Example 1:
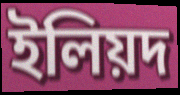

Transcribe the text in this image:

ইলিয়দ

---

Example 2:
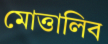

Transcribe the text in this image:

মোত্তালিব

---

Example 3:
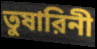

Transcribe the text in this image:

তুষারিনী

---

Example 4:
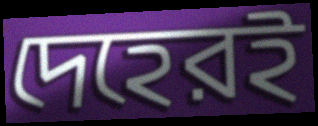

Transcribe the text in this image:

দেহেরই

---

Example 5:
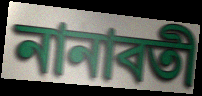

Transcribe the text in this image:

নানাবতী